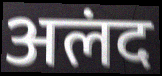
अलंद